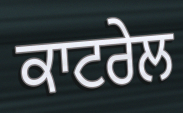
ਕਾਟਰੇਲ